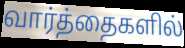
வார்த்தைகளில்